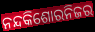
ନନ୍ଦକିଶୋରନିଜର